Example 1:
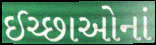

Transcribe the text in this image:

ઈચ્છાઓનાં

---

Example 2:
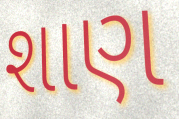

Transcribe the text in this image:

શાણ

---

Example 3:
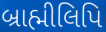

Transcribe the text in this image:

બ્રાહ્મીલિપિ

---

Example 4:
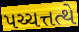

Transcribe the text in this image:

પચ્ચત્તત્થે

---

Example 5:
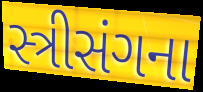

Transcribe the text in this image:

સ્ત્રીસંગના